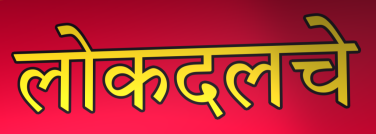
लोकदलचे